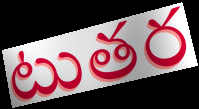
టుతర